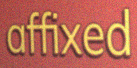
affixed